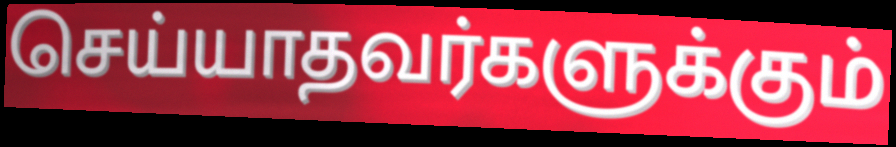
செய்யாதவர்களுக்கும்